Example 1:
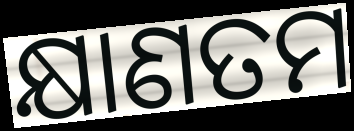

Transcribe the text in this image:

କ୍ଷାଣତମ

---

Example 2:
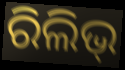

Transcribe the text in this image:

ରିଲିଭ୍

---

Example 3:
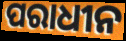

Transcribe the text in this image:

ପରାଧୀନ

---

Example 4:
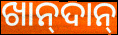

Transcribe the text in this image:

ଖାନ୍‍ଦାନ୍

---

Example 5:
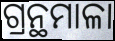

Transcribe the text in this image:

ଗ୍ରନ୍ଥମାଳା